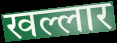
खल्लार